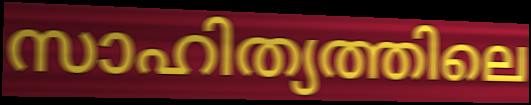
സാഹിത്യത്തിലെ